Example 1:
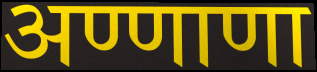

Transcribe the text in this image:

अण्णाणा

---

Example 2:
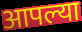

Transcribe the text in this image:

आपल्या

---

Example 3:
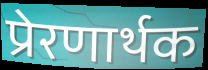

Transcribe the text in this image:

प्रेरणार्थक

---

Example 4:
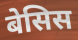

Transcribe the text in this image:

बेसिस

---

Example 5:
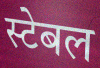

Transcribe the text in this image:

स्‍टेबल